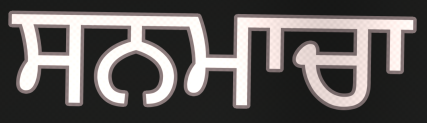
ਸਨਮਾਚਾ